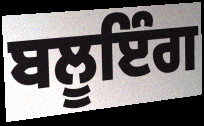
ਬਲੂਇੰਗ